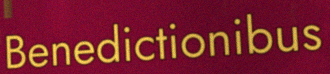
Benedictionibus